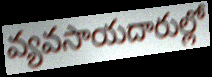
వ్యవసాయదారుల్లో